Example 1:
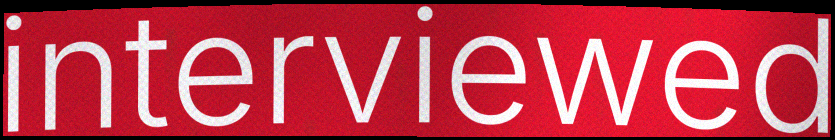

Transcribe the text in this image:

interviewed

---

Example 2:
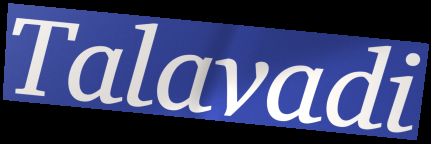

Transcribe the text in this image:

Talavadi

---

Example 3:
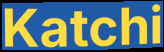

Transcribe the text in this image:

Katchi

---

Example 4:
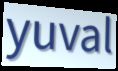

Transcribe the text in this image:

yuval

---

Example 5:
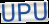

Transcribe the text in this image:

UPU